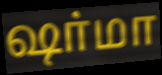
ஷர்மா